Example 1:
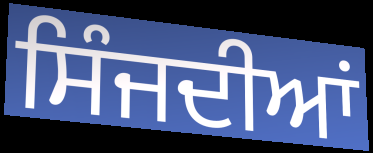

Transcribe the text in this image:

ਸਿੰਜਦੀਆਂ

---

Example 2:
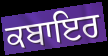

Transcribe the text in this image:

ਕਬਾਇਰ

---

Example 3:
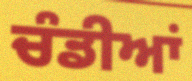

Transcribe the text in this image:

ਚੰਡੀਆਂ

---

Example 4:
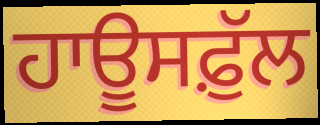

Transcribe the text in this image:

ਹਾਊਸਫ਼ੁੱਲ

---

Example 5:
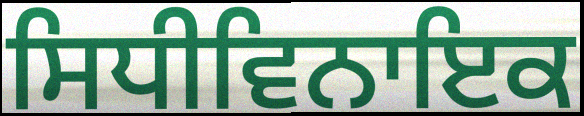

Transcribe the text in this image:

ਸਿਧੀਵਿਨਾਇਕ